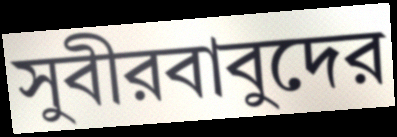
সুবীরবাবুদের